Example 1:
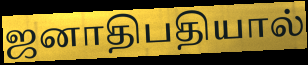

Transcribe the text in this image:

ஜனாதிபதியால்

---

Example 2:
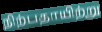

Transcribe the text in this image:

நிற்பதாயிற்று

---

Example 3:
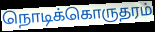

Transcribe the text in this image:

நொடிக்கொருதரம்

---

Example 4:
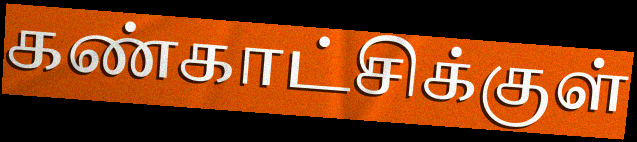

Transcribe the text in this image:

கண்காட்சிக்குள்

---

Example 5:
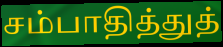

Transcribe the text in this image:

சம்பாதித்துத்